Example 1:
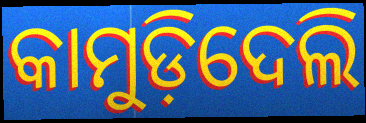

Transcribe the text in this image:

କାମୁଡ଼ିଦେଲି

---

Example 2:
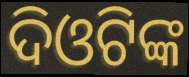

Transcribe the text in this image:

ଦିଓଟିଙ୍କ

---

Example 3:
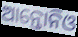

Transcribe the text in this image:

ଆନ୍ତୋନିଓ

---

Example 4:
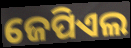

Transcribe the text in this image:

ଜେପିଏଲ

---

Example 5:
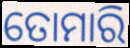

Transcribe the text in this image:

ତୋମାରି